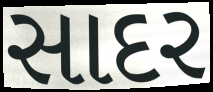
સાદર